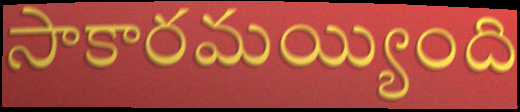
సాకారమయ్యింది